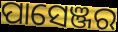
ପାସେଞ୍ଜର